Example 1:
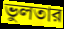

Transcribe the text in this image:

ভুলতার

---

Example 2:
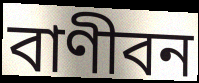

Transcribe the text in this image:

বাণীবন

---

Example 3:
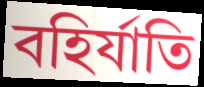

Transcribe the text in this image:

বহির্যাতি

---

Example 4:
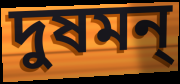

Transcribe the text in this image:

দুষমন্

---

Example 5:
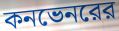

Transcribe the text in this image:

কনভেনরের